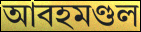
আবহমণ্ডল